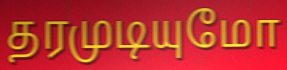
தரமுடியுமோ